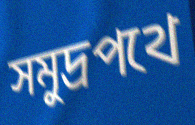
সমুদ্রপথে